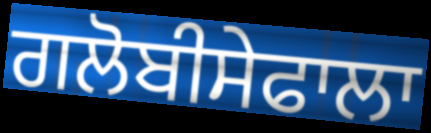
ਗਲੋਬੀਸੇਫਾਲਾ